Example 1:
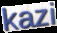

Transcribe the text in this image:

kazi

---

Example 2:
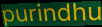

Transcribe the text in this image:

purindhu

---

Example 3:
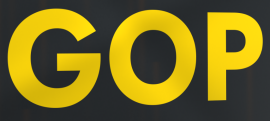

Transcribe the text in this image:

GOP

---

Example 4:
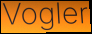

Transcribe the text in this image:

Vogler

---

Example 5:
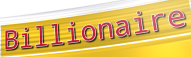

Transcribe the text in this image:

Billionaire